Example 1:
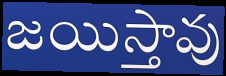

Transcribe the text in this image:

జయిస్తావు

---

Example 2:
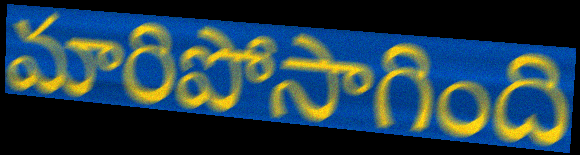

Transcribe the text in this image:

మారిపోసాగింది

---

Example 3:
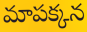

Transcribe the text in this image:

మాపక్కన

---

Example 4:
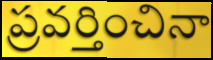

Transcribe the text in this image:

ప్రవర్తించినా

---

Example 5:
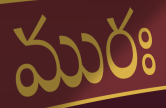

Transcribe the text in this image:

మురః